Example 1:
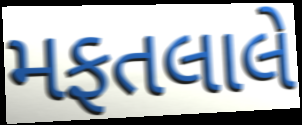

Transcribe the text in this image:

મફતલાલે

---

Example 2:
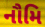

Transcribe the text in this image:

નૌમિ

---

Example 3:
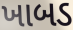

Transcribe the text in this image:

ખાબડ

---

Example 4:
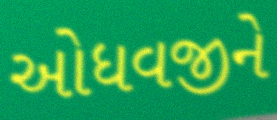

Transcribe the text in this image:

ઓધવજીને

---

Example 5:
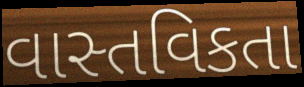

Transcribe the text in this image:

વાસ્તવિકતા